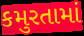
કમુરતામાં